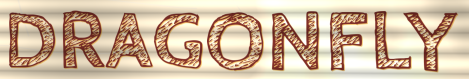
DRAGONFLY